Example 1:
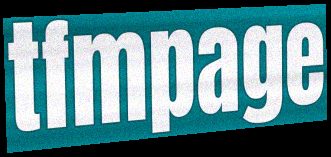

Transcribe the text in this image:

tfmpage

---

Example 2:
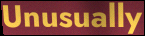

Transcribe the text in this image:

Unusually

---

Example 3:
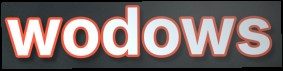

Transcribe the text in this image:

wodows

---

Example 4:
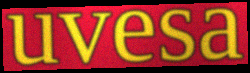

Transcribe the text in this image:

uvesa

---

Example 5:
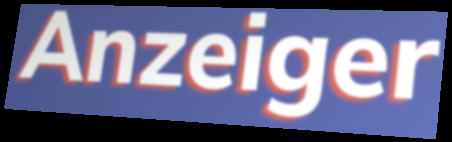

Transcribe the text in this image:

Anzeiger